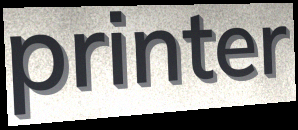
printer